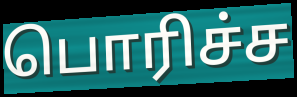
பொரிச்ச